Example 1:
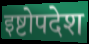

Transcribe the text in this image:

इष्टोपदेश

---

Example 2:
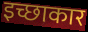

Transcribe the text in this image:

इच्छाकार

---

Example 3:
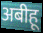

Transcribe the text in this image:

अबीहू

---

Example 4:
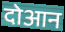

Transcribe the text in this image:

दोआन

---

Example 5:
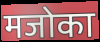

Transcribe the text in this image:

मजोका